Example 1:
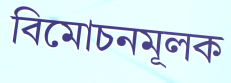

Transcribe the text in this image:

বিমোচনমূলক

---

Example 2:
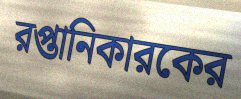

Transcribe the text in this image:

রপ্তানিকারকের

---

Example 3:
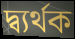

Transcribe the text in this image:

দ্ব্যর্থক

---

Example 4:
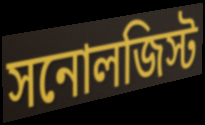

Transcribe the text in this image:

সনোলজিস্ট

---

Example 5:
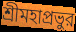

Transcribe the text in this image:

শ্রীমহাপ্রভুর